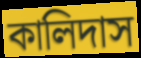
কালিদাস